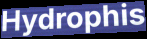
Hydrophis